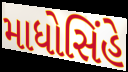
માધોસિંહે